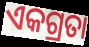
ଏକଗ୍ରତା